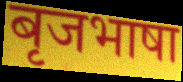
बृजभाषा